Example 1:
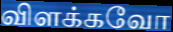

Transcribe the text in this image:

விளக்கவோ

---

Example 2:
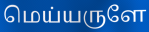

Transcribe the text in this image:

மெய்யருளே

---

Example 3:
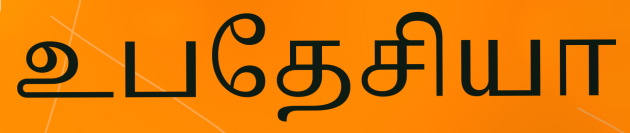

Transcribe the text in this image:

உபதேசியா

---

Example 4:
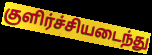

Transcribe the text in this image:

குளிர்ச்சியடைந்து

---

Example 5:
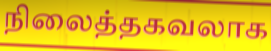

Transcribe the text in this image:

நிலைத்தகவலாக